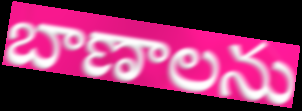
బాణాలను